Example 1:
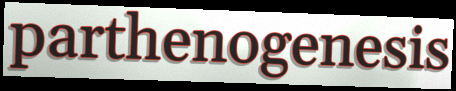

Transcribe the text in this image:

parthenogenesis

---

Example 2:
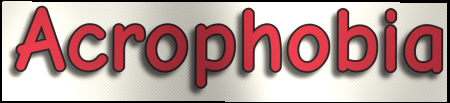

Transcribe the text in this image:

Acrophobia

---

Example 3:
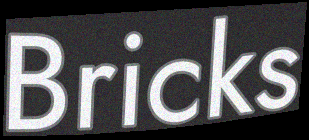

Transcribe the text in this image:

Bricks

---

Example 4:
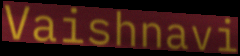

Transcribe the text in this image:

Vaishnavi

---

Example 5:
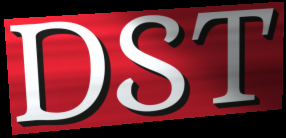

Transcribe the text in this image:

DST